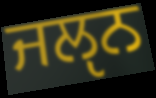
ਜਲੵਨ